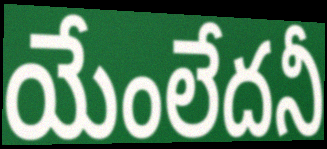
యేంలేదనీ